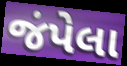
જંપેલા